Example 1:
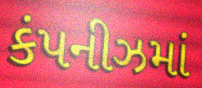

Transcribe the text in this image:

કંપનીઝમાં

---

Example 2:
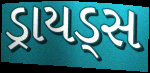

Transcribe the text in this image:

ડ્રાયડ્સ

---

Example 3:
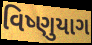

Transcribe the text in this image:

વિષ્ણુયાગ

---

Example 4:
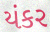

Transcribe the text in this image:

યંકર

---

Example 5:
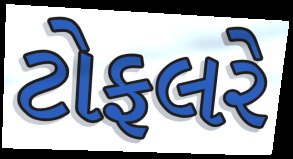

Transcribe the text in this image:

ટોફલરે